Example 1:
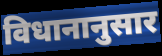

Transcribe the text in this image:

विधानानुसार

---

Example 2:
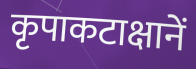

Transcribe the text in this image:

कृपाकटाक्षानें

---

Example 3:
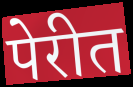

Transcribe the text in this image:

पेरीत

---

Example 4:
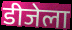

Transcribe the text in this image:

डीजेला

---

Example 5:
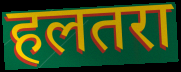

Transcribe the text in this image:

हलतरा